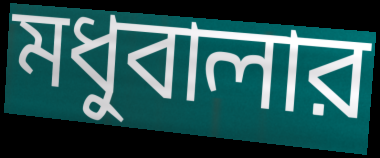
মধুবালার